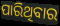
ପାରିଥିବାର